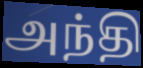
அந்தி